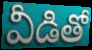
వీడితో